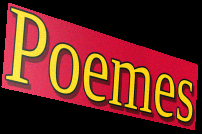
Poemes